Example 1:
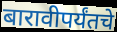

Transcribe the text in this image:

बारावीपर्यंतचे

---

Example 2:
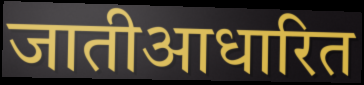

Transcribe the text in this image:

जातीआधारित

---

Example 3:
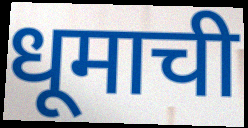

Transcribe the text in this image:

धूमाची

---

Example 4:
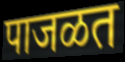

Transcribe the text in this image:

पाजळत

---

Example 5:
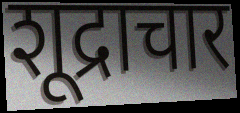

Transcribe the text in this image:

शूद्राचार